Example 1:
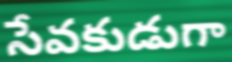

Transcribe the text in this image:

సేవకుడుగా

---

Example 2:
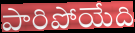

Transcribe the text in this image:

పారిపోయేది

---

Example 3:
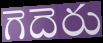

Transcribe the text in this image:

గెదెరు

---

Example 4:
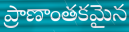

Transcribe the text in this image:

ప్రాణాంతకమైన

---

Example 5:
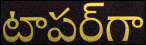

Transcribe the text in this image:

టాపర్‌గా